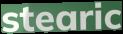
stearic